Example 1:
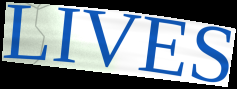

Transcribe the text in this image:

LIVES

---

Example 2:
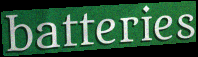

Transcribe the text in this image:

batteries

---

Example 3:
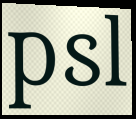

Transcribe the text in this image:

psl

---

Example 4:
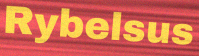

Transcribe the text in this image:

Rybelsus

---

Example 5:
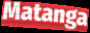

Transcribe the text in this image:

Matanga